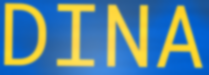
DINA